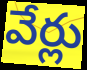
వేర్లు